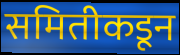
समितीकडून